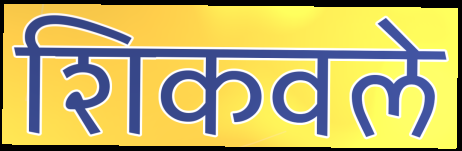
शिकवले